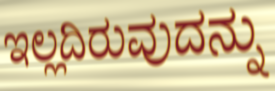
ಇಲ್ಲದಿರುವುದನ್ನು